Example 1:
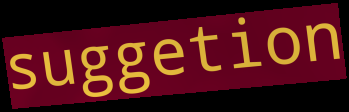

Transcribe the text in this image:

suggetion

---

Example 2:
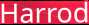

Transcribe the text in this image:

Harrod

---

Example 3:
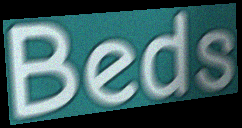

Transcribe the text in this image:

Beds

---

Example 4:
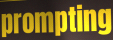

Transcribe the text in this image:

prompting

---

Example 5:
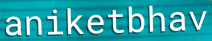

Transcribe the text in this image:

aniketbhav